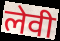
लेवी